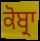
ਕੋਬ੍ਰਾ